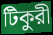
টিকুরী